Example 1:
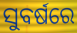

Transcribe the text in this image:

ସୁବର୍ଷରେ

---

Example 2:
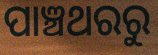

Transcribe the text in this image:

ପାଞ୍ଚଥରରୁ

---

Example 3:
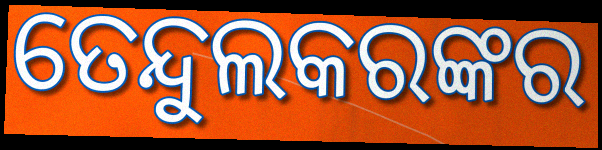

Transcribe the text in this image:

ତେନ୍ଦୁଲକରଙ୍କର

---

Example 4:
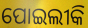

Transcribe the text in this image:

ପୋଇଲୀକି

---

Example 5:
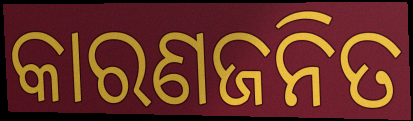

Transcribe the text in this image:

କାରଣଜନିତ